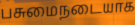
பசுமைநடையாக